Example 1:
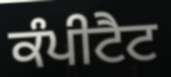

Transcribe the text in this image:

ਕੰਪੀਟੈਟ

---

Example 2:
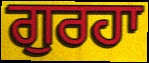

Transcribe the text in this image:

ਗੁਰਹਾ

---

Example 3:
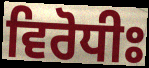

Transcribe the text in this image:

ਵਿਰੋਧੀਃ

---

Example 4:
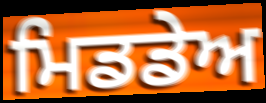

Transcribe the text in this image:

ਮਿਡਡੇਅ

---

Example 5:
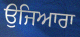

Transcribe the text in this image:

ਉਜਿਆਰਾ